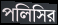
পলিসির